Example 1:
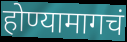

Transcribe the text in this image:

होण्यामागचं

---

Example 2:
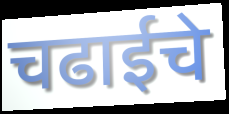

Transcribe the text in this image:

चढाईचे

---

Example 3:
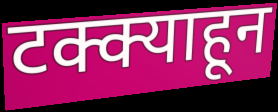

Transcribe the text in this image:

टक्क्याहून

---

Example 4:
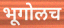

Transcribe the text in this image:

भूगोलच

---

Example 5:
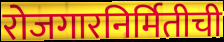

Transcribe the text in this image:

रोजगारनिर्मितीची